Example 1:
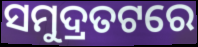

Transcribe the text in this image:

ସମୁଦ୍ରତଟରେ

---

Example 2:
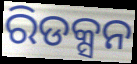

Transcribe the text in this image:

ରିଡକ୍ସନ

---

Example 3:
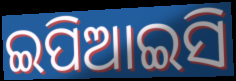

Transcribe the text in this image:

ଇପିଆଇସି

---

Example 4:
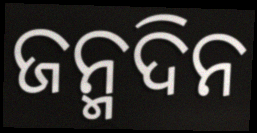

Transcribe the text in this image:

ଜନ୍ମଦିନ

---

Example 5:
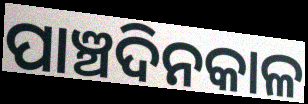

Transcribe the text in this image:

ପାଞ୍ଚଦିନକାଳ